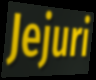
Jejuri